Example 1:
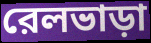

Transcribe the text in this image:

রেলভাড়া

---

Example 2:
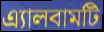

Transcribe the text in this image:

এ্যালবামটি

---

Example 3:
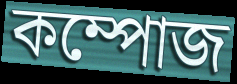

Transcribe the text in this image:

কম্পোজ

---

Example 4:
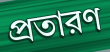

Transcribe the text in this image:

প্রতারণ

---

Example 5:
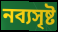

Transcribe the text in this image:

নব্যসৃষ্ট